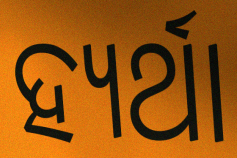
ହ୍ୟର୍ଥା